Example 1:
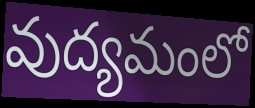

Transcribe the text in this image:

వుద్యమంలో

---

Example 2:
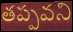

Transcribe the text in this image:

తప్పవని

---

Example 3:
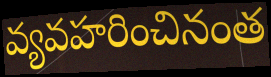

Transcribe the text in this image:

వ్యవహరించినంత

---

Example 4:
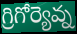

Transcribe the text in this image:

గ్రిగోర్యెవ్న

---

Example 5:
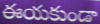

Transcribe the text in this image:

ఈయకుండా